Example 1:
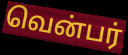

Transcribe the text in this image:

வென்பர்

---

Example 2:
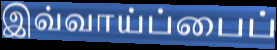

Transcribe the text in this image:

இவ்வாய்ப்பைப்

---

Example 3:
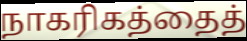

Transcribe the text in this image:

நாகரிகத்தைத்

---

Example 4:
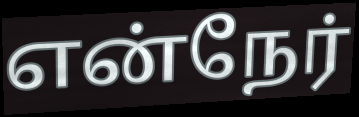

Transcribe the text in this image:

என்நேர்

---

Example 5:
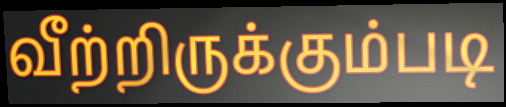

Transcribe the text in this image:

வீற்றிருக்கும்படி